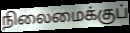
நிலைமைக்குப்